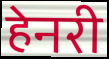
हेनरी